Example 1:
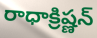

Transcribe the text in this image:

రాధాక్రిష్ణన్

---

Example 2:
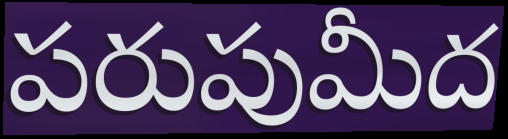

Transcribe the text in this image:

పరుపుమీద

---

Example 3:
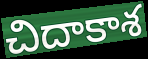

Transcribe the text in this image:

చిదాకాశ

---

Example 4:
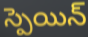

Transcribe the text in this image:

స్పెయిన్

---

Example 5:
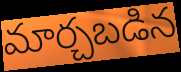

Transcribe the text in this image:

మార్చబడిన